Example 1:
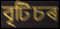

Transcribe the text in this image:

বৃটিচৰ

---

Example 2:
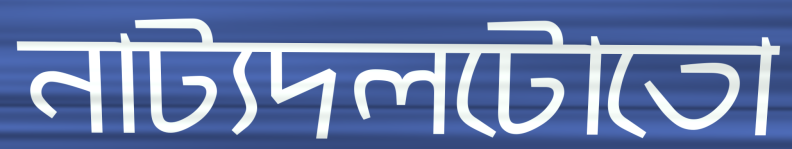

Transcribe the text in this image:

নাট্যদলটোতো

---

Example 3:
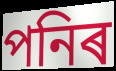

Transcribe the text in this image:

পনিৰ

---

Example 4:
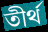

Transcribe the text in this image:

তীৰ্থ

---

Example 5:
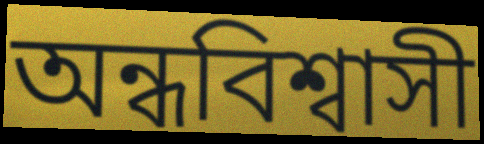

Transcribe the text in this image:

অন্ধবিশ্বাসী